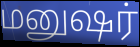
மனுஷர்